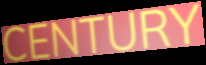
CENTURY